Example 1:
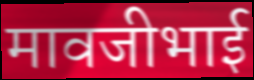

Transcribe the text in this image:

मावजीभाई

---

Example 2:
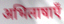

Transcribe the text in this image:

अभिलाषाएँ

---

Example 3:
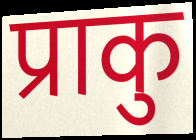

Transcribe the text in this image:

प्राकु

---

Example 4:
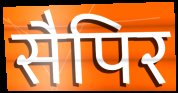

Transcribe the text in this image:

सैपिर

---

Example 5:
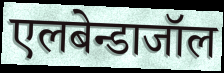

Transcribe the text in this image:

एलबेन्डाजॉल